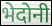
भेदोनी